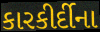
કારકીર્દીના